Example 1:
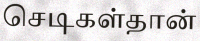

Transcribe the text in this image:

செடிகள்தான்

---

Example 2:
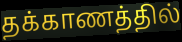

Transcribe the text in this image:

தக்காணத்தில்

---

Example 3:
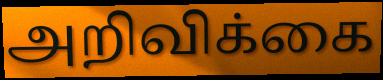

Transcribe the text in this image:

அறிவிக்கை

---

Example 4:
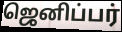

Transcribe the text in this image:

ஜெனிப்பர்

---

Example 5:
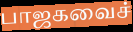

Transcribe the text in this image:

பாஜகவைச்